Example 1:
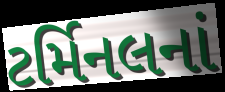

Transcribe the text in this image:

ટર્મિનલનાં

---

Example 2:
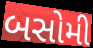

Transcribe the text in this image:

બસોમી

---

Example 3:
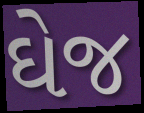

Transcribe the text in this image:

ઘેજ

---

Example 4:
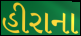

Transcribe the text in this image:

હીરાના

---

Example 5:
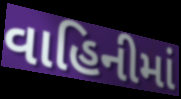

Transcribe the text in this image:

વાહિનીમાં